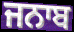
ਜਨਾਬ